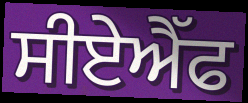
ਸੀਏਐੱਫ